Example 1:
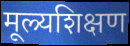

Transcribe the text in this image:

मूल्यशिक्षण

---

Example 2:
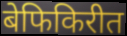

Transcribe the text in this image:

बेफिकिरीत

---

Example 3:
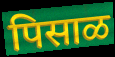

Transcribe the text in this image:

पिसाळ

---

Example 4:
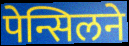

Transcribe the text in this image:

पेन्सिलने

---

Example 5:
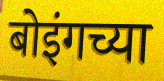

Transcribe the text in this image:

बोइंगच्या